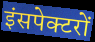
इंसपेक्टरों